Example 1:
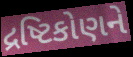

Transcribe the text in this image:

દ્રષ્ટિકોણને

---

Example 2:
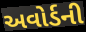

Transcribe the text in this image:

અવોર્ડની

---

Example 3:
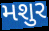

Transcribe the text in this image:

મશુર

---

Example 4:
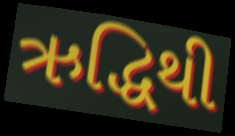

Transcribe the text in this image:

ઋદ્ધિથી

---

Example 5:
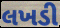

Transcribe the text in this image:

લખડી